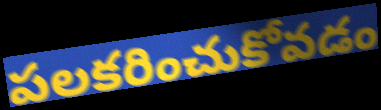
పలకరించుకోవడం